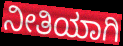
ನೀತಿಯಾಗಿ